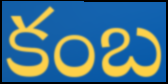
కంబ